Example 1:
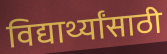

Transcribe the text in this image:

विद्यार्थ्यांसाठी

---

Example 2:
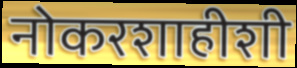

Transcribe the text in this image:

नोकरशाहीशी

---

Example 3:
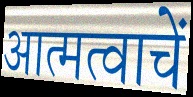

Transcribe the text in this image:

आत्मत्वाचें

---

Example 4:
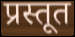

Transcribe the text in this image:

प्रस्तूत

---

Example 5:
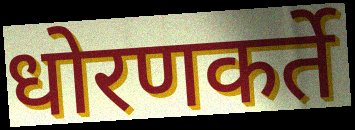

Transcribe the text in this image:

धोरणकर्ते